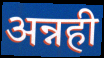
अन्नही